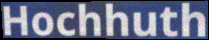
Hochhuth